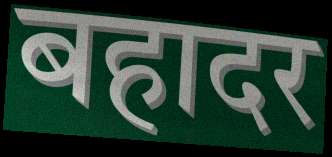
बहादर